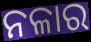
ନଳାର